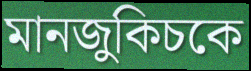
মানজুকিচকে